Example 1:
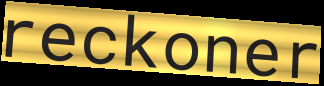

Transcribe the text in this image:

reckoner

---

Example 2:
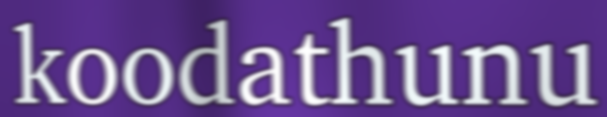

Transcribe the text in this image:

koodathunu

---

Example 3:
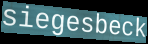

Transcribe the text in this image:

siegesbeck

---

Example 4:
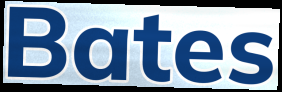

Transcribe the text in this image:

Bates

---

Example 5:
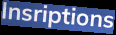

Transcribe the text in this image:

Insriptions